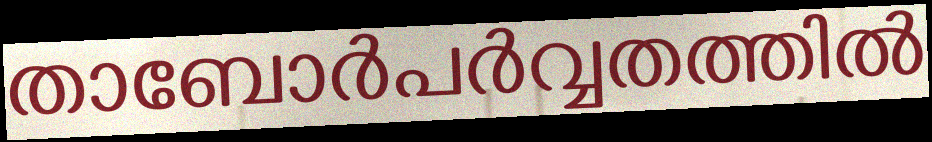
താബോർപർവ്വതത്തിൽ